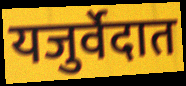
यजुर्वेदात